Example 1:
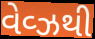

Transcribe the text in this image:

વેવ્ઝથી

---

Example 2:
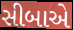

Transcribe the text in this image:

સીબાએ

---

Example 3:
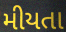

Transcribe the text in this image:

મીયતા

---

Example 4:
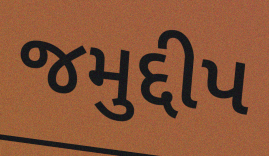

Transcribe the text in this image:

જમુદ્દીપ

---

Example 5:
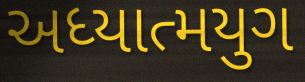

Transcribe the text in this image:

અધ્યાત્મયુગ